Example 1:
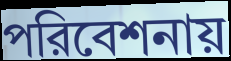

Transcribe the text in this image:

পরিবেশনায়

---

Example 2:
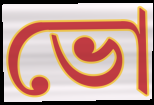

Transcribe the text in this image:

ভো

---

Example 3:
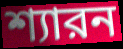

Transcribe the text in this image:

শ্যারন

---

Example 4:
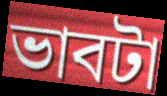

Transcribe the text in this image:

ভাবটা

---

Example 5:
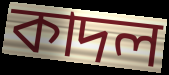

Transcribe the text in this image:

কাদল